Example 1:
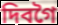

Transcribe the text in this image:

দিবগৈ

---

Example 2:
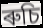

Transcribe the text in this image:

ৰুচি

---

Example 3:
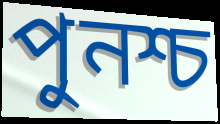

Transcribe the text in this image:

পুনশ্চ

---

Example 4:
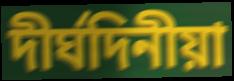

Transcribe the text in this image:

দীৰ্ঘদিনীয়া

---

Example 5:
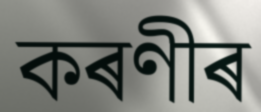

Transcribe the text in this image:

কৰণীৰ